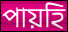
পায়হি